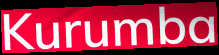
Kurumba